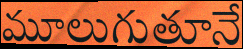
మూలుగుతూనే